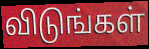
விடுங்கள்